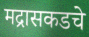
मद्रासकडचे